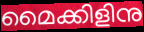
മൈക്കിളിനു